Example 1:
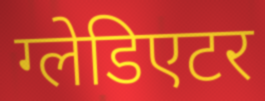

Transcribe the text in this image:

ग्लेडिएटर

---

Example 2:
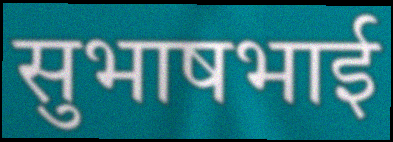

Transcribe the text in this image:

सुभाषभाई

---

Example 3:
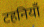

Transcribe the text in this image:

टहनियाँ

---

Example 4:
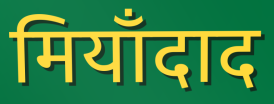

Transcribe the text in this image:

मियाँदाद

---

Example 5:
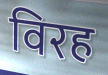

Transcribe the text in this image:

विरह